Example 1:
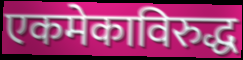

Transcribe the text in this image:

एकमेकाविरुद्ध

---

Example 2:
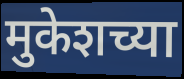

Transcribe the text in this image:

मुकेशच्या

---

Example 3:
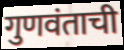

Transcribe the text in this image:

गुणवंताची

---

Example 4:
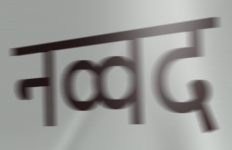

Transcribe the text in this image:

नव्वद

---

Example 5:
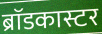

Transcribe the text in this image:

ब्रॉडकास्टर